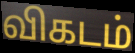
விகடம்